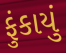
ફુંકાયું